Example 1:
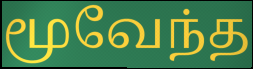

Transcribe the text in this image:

மூவேந்த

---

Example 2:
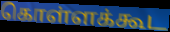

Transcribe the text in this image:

கொள்ளக்கூட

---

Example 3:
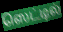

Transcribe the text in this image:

ஸெட்டில்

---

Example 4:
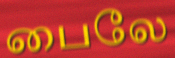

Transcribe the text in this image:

பைலே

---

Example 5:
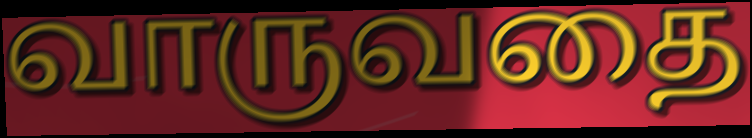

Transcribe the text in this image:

வாருவதை